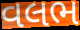
વલભ